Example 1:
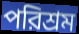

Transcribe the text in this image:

পরিশ্রম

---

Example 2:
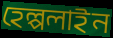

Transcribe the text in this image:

হেল্পলাইন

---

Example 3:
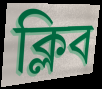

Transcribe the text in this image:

ক্লিব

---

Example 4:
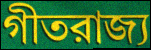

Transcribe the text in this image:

গীতরাজ্য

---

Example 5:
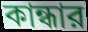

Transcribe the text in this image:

কান্ধার